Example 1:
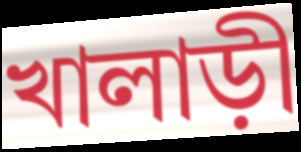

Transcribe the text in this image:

খালাড়ী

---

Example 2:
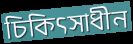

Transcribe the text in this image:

চিকিৎসাধীন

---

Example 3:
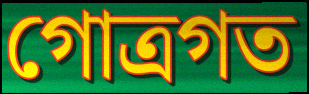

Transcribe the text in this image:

গোত্রগত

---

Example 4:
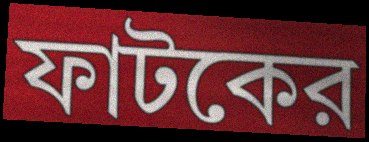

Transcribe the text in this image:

ফাটকের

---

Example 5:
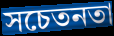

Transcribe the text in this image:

সচেতনতা